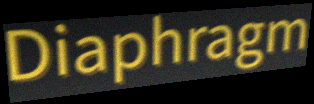
Diaphragm